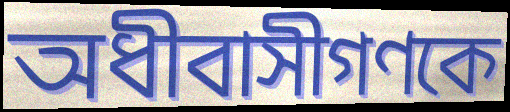
অধীবাসীগণকে